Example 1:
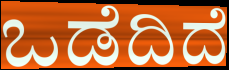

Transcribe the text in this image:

ಒಡೆದಿದೆ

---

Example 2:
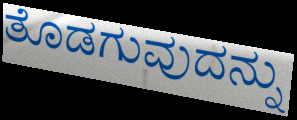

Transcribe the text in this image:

ತೊಡಗುವುದನ್ನು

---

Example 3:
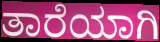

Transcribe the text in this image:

ತಾರೆಯಾಗಿ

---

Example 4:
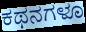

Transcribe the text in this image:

ಕಥನಗಳೂ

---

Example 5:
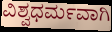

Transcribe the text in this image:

ವಿಶ್ವಧರ್ಮವಾಗಿ